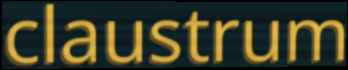
claustrum